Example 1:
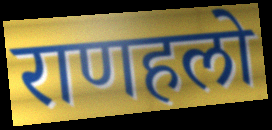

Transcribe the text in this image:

राणहलो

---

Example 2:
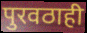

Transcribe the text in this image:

पुरवठाही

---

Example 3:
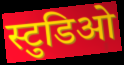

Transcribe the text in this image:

स्टुडिओ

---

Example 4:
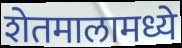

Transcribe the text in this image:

शेतमालामध्ये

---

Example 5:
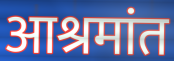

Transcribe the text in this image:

आश्रमांत